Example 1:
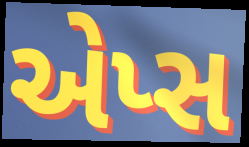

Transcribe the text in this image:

એપ્સ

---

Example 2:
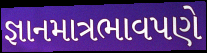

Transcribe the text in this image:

જ્ઞાનમાત્રભાવપણે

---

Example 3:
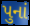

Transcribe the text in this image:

પુનાં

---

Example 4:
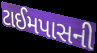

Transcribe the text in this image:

ટાઈમપાસની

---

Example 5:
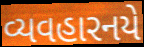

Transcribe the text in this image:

વ્યવહારનયે